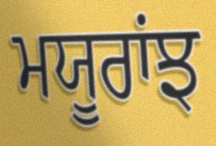
ਮਯੂਰਾਂਝ